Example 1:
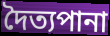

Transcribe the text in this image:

দৈত্যপানা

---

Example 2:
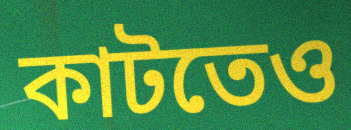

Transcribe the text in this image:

কাটতেও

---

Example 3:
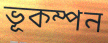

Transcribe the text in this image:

ভূকম্পন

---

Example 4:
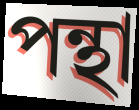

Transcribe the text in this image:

পন্থা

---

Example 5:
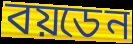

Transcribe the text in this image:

বয়ডেন